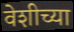
वेशीच्या